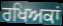
ਰਖਿਅਕਾਂ